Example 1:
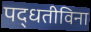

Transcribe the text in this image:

पद्धतीविना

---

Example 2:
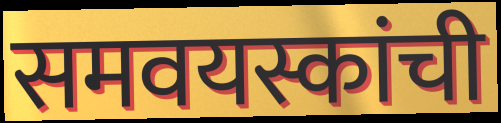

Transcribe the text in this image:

समवयस्कांची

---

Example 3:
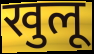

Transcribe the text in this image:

खुलू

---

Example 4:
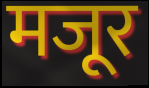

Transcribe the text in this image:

मजूर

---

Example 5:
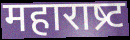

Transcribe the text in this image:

महाराष्र्ट